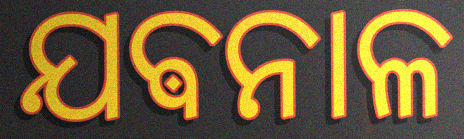
ଯଵନାଳ